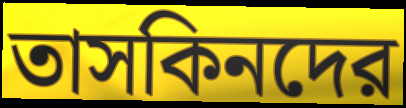
তাসকিনদের